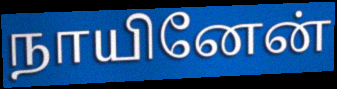
நாயினேன்